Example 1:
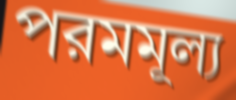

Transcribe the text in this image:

পরমমূল্য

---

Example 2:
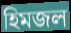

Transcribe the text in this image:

হিমজল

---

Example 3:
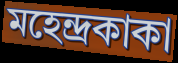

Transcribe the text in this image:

মহেন্দ্রকাকা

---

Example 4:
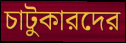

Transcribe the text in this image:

চাটুকারদের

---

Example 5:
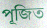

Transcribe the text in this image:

পূজিত